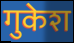
गुकेश